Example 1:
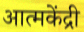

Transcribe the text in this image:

आत्मकेंद्री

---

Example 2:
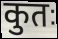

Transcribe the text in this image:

कुतः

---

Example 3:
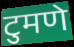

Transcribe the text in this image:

टुमणे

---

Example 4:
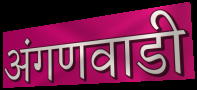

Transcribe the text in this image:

अंगणवाडी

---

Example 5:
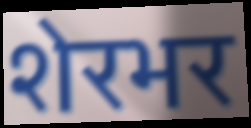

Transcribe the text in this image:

शेरभर